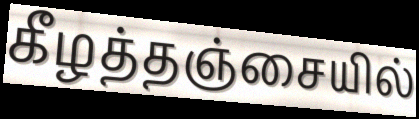
கீழத்தஞ்சையில்